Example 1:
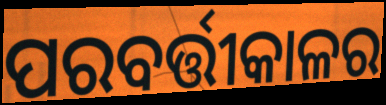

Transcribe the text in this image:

ପରବର୍ତ୍ତୀକାଳର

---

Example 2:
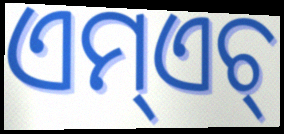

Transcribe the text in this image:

ଏମ୍ଏଚ୍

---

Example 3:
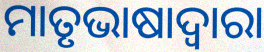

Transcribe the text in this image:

ମାତୃଭାଷାଦ୍ୱାରା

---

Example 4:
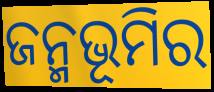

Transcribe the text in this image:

ଜନ୍ମଭୂମିର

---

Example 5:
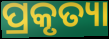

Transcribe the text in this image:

ପ୍ରକୃତ୍ୟା